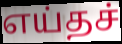
எய்தச்